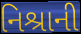
નિશ્રાની